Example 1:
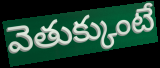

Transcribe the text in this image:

వెతుక్కుంటే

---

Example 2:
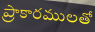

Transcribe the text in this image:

ప్రాకారములతో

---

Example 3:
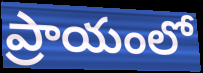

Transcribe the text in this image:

ప్రాయంలో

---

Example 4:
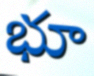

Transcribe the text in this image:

భూ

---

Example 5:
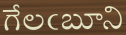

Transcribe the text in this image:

గేలఁబూని